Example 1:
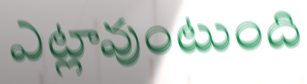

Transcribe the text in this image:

ఎట్లావుంటుంది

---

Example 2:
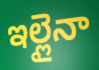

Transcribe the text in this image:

ఇల్లైనా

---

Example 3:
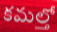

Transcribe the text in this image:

కమల్తో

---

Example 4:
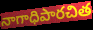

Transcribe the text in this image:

నాగాధిపారచిత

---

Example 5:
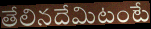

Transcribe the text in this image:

తేలినదేమిటంటే